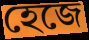
হেজে